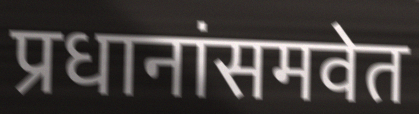
प्रधानांसमवेत